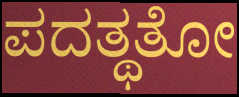
ಪದತ್ಥತೋ